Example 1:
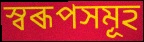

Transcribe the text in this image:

স্বৰূপসমূহ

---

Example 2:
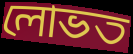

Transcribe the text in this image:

লোভত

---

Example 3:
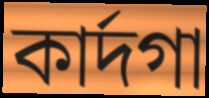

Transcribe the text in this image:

কাৰ্দগা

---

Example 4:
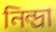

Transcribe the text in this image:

নিন্দ্ৰা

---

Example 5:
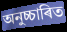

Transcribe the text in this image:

অনুচ্চাৰিত